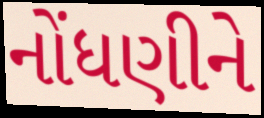
નોંધણીને